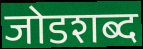
जोडशब्द